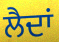
ਲੈਦਾਂ